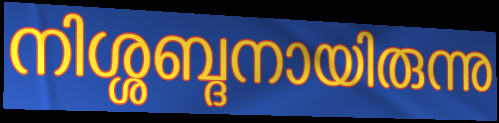
നിശ്ശബ്ദനായിരുന്നു